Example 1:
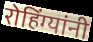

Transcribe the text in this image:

रोहिंग्यांनी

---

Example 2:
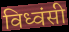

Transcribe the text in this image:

विध्वंसी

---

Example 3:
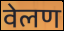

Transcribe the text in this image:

वेलण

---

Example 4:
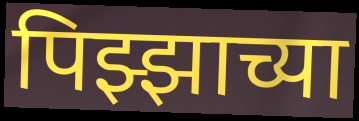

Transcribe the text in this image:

पिझ्झाच्या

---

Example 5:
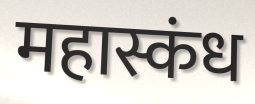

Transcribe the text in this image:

महास्कंध